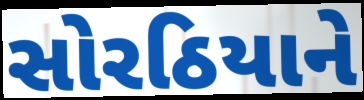
સોરઠિયાને